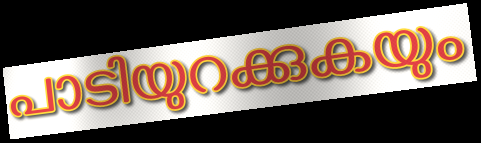
പാടിയുറക്കുകയും